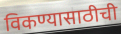
विकण्यासाठीची